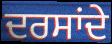
ਦਰਸਾਂਦੇ